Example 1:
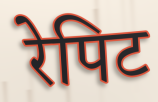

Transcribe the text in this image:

रेपिट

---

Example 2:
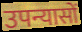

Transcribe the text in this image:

उपन्यासों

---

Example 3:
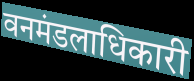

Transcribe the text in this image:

वनमंडलाधिकारी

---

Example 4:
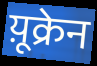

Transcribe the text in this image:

य़ूक्रेन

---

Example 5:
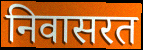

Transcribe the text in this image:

निवासरत